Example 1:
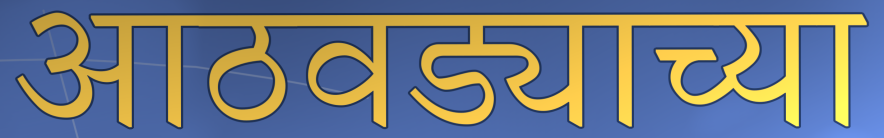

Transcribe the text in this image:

आठवड्याच्या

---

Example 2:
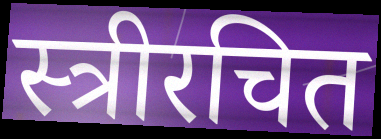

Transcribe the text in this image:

स्त्रीरचित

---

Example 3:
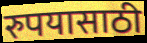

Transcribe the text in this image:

रुपयासाठी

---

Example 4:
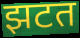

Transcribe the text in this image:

झटत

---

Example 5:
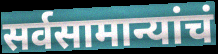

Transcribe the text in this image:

सर्वसामान्यांचं